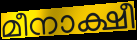
മീനാക്ഷീ